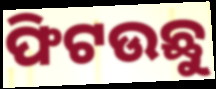
ଫିଟଉଛୁ